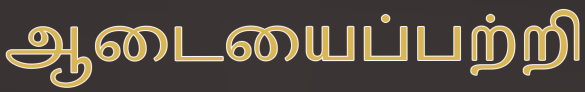
ஆடையைப்பற்றி